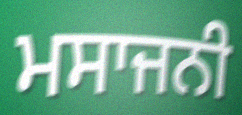
ਮਸਾਜਨੀ